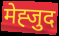
मेह्जुद